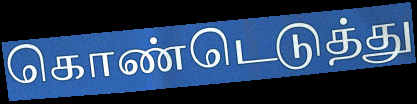
கொண்டெடுத்து